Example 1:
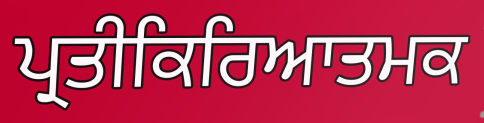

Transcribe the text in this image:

ਪ੍ਰਤੀਕਿਰਿਆਤਮਕ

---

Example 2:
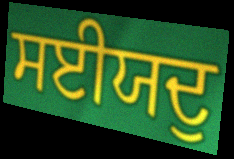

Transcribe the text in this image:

ਸਈਯਦੁ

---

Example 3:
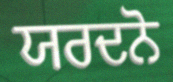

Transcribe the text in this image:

ਯਰਦਨੋ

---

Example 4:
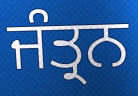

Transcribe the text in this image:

ਜੰਤ੍ਰਨ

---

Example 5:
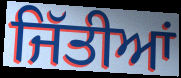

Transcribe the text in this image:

ਜਿੱਤੀਆਂ